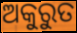
ଅକୁରୁତ